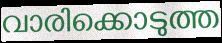
വാരിക്കൊടുത്ത